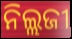
ନିଲ୍ଲଜୀ